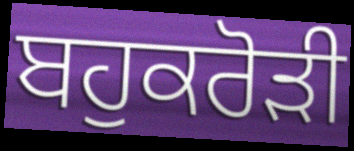
ਬਹੁਕਰੋਡ਼ੀ